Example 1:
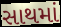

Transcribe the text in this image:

સાથમાં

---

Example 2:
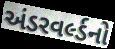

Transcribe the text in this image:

અંડરવર્લ્ડનો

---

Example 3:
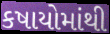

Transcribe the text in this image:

કષાયોમાંથી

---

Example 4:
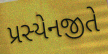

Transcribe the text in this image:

પ્રસ્યેનજીતે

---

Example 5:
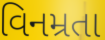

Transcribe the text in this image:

વિનમ્રતા